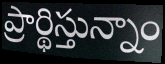
ప్రార్థిస్తున్నాం